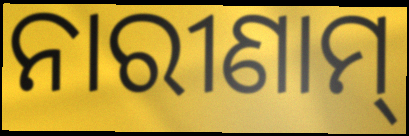
ନାରୀଣାମ୍